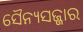
ସୈନ୍ୟସଜ୍ଜାର